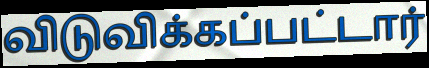
விடுவிக்கப்பட்டார்